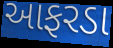
આફરડા